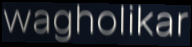
wagholikar